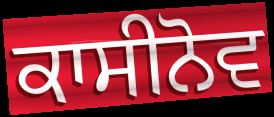
ਕਾਸੀਨੋਵ